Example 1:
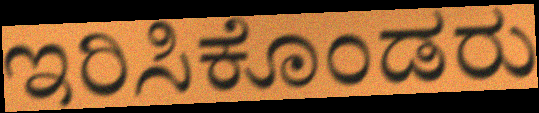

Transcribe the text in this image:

ಇರಿಸಿಕೊಂಡರು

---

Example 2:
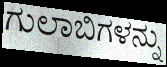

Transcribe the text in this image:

ಗುಲಾಬಿಗಳನ್ನು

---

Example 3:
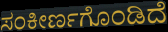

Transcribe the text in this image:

ಸಂಕೀರ್ಣಗೊಂಡಿದೆ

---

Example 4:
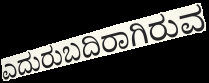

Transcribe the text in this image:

ಎದುರುಬದಿರಾಗಿರುವ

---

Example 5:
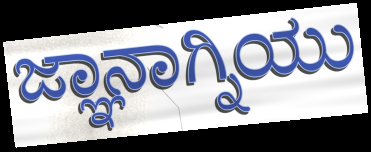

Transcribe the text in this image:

ಜ್ಞಾನಾಗ್ನಿಯು